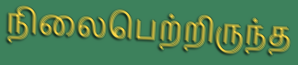
நிலைபெற்றிருந்த